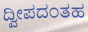
ದ್ವೀಪದಂತಹ